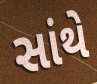
સાંથે